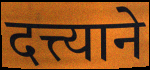
दत्त्याने